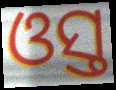
ଓସ୍ତ